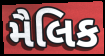
મૈલિક